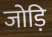
जोड़ि